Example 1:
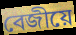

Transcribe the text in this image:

বেজীয়ে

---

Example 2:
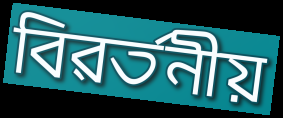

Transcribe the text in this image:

বিৱৰ্তনীয়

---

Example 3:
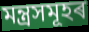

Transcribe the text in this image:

মন্ত্ৰসমূহৰ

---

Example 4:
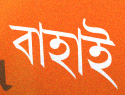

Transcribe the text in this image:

বাহাই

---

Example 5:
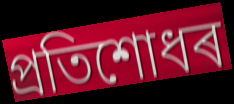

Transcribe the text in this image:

প্ৰতিশোধৰ